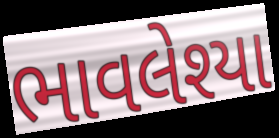
ભાવલેશ્યા